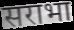
सराभा